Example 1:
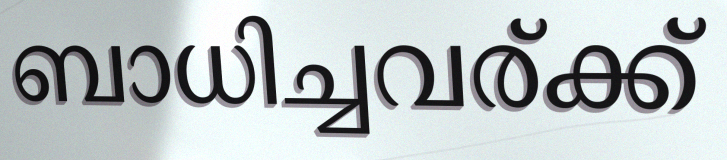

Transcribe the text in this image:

ബാധിച്ചവര്ക്ക്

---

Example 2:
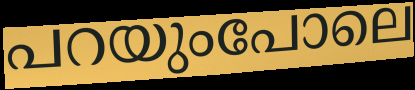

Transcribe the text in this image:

പറയുംപോലെ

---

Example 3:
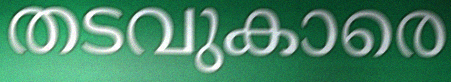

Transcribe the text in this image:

തടവുകാരെ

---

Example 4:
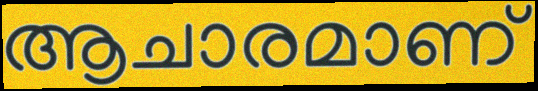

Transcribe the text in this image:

ആചാരമാണ്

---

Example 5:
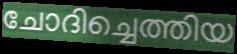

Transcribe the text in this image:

ചോദിച്ചെത്തിയ